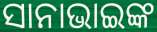
ସାନାଭାଇଙ୍କ